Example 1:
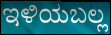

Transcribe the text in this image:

ಇಳಿಯಬಲ್ಲ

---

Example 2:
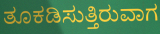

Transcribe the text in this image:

ತೂಕಡಿಸುತ್ತಿರುವಾಗ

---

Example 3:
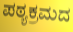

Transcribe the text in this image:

ಪಠ್ಯಕ್ರಮದ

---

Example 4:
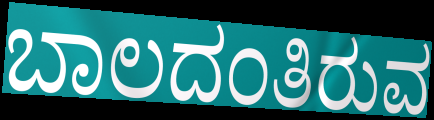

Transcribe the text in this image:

ಬಾಲದಂತಿರುವ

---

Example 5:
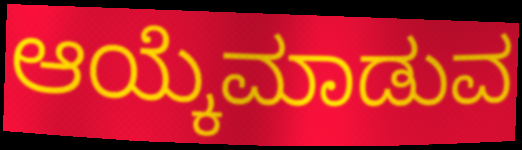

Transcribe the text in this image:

ಆಯ್ಕೆಮಾಡುವ